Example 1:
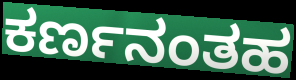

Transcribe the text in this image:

ಕರ್ಣನಂತಹ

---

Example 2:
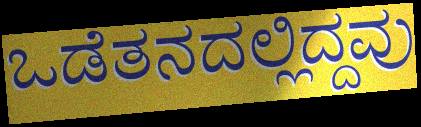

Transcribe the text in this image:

ಒಡೆತನದಲ್ಲಿದ್ದವು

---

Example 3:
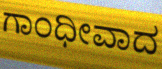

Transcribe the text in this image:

ಗಾಂಧೀವಾದ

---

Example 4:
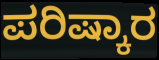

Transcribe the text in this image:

ಪರಿಷ್ಕಾರ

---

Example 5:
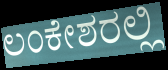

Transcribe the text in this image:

ಲಂಕೇಶರಲ್ಲಿ